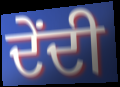
ਦੇਂਦੀ